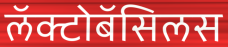
लॅक्टोबॅसिलस